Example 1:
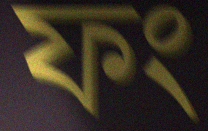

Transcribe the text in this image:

ফং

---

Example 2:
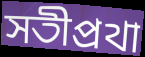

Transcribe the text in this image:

সতীপ্রথা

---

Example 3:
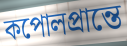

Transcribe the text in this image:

কপোলপ্রান্তে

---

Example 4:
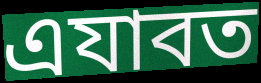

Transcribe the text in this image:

এযাবত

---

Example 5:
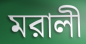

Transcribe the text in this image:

মরালী